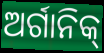
ଅର୍ଗାନିକ୍